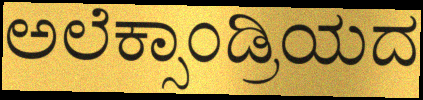
ಅಲೆಕ್ಸಾಂಡ್ರಿಯದ